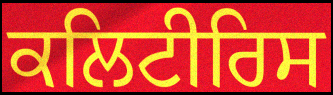
ਕਲਿਟੀਰਿਸ